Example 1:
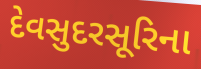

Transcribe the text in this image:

દેવસુદરસૂરિના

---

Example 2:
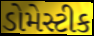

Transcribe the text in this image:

ડોમેસ્ટીક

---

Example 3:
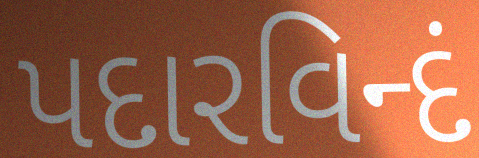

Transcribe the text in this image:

પદારવિન્દં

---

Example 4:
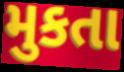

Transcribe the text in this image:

મુકતા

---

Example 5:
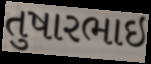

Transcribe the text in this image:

તુષારભાઇ